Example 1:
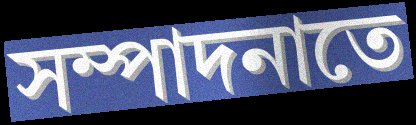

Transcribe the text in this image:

সম্পাদনাতে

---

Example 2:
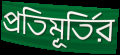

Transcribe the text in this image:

প্রতিমূর্তির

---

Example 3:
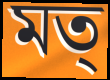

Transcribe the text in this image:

মত্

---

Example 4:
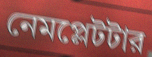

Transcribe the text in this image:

নেমপ্লেটটার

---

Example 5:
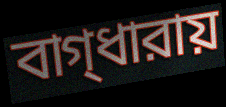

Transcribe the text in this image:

বাগ্‌ধারায়